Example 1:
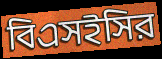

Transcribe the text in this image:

বিএসইসির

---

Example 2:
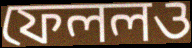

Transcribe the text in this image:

ফেললও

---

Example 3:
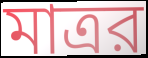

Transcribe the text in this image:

মাত্রর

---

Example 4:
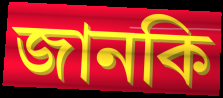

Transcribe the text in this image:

জানকি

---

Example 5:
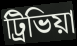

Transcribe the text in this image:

ট্রিভিয়া